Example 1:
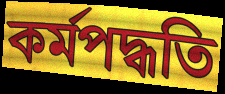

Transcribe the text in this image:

কর্মপদ্ধতি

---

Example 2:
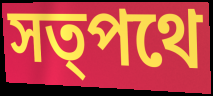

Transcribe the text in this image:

সত্পথে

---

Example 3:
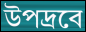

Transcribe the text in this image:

উপদ্রবে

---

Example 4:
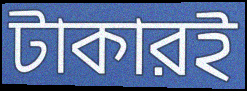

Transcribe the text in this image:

টাকারই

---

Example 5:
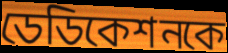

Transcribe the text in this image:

ডেডিকেশনকে